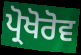
ਪ੍ਰੋਖੋਰੋਵ